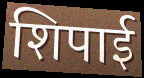
शिपाई